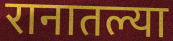
रानातल्या